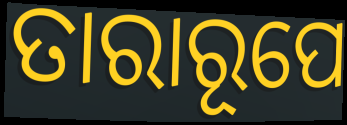
ତାରାରୂପେ